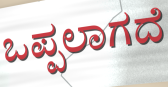
ಒಪ್ಪಲಾಗದೆ